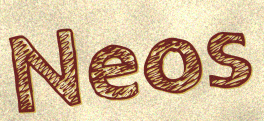
Neos